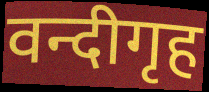
वन्दीगृह